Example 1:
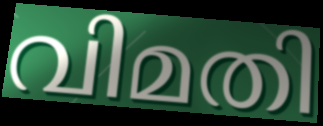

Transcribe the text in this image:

വിമതി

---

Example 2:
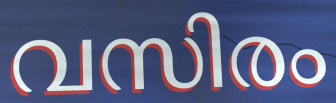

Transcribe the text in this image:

വസിരം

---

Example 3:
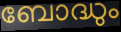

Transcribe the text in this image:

ബോദ്ധും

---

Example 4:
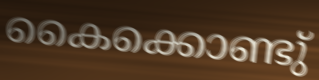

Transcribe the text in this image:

കൈക്കൊണ്ടു്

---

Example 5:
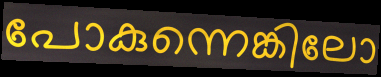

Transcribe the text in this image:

പോകുന്നെങ്കിലോ